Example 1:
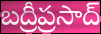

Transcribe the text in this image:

బద్రీప్రసాద్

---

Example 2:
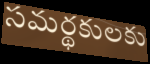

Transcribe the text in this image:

సమర్థకులకు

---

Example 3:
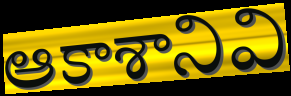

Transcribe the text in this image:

ఆకాశానివి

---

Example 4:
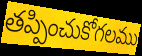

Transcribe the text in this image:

తప్పించుకోగలము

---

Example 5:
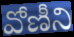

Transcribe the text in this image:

వోణీని